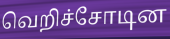
வெறிச்சோடின